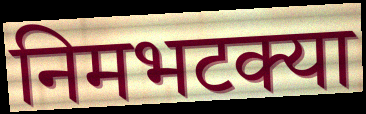
निमभटक्या